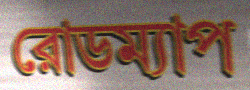
রোডম্যাপ